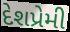
દેશપ્રેમી